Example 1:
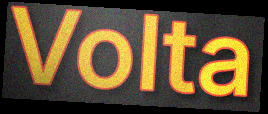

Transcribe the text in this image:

Volta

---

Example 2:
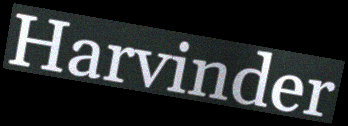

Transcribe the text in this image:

Harvinder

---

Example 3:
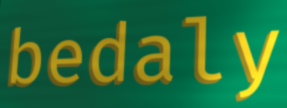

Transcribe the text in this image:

bedaly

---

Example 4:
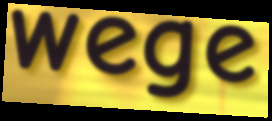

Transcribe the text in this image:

wege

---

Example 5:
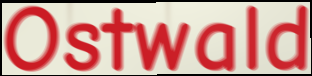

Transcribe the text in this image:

Ostwald